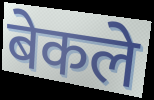
बेकले